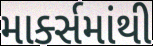
માર્ક્સમાંથી